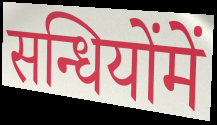
सन्धियोंमें